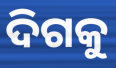
ଦିଗକୁ